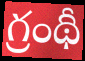
గ్రంథీ